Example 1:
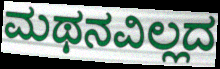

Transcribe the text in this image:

ಮಥನವಿಲ್ಲದ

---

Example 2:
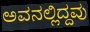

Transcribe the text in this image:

ಅವನಲ್ಲಿದ್ದವು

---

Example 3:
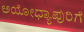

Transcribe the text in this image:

ಅಯೋಧ್ಯಾಪುರಿಗೆ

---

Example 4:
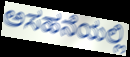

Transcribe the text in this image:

ಅಸಹನೆಯಲ್ಲಿ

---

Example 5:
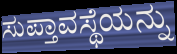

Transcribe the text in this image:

ಸುಪ್ತಾವಸ್ಥೆಯನ್ನು